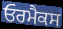
ਓਰਮੈਕਸ